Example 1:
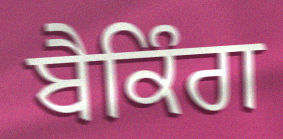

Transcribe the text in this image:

ਬੈਕਿੰਗ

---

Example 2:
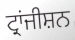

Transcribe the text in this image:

ਟ੍ਰਾਂਜੀਸ਼ਨ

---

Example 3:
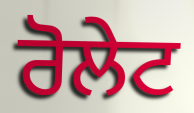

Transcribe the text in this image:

ਰੋਲੇਟ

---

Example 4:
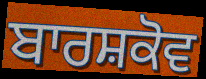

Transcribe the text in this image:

ਬਾਰਸ਼ਕੋਵ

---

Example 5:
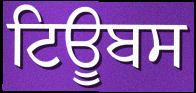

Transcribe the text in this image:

ਟਿਊਬਸ